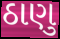
ઠાણુ